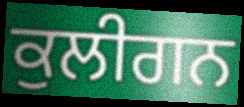
ਕੁਲੀਗਨ